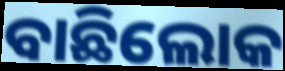
ବାଛିଲୋକ